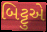
બિટ્ટુએ